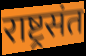
राष्ट्रसंत